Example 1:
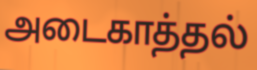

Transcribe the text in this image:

அடைகாத்தல்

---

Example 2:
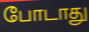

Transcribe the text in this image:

போடாது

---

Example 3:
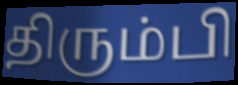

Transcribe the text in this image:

திரும்பி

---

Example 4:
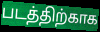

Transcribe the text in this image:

படத்திற்காக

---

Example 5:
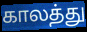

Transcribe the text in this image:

காலத்து